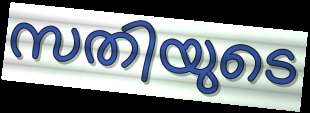
സതിയുടെ